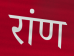
रांण